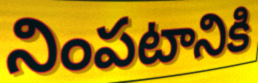
నింపటానికి